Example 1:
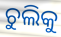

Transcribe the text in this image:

ଚୁଲିକୁ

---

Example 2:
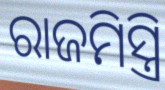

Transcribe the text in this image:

ରାଜମିସ୍ତ୍ରି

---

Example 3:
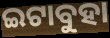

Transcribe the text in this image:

ଇଟାବୁହା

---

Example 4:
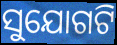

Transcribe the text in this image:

ସୁଯୋଗଟି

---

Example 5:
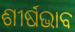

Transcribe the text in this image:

ଶୀର୍ଷଭାବ